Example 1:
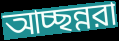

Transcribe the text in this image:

আচ্ছন্নরা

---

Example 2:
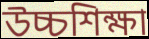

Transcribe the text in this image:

উচ্চশিক্ষা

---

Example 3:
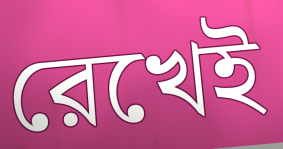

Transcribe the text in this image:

রেখেই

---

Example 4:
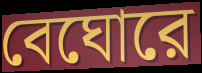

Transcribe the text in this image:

বেঘোরে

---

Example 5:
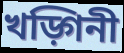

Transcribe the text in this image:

খড়্গিনী